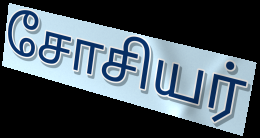
சோசியர்